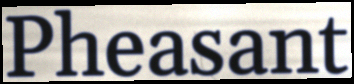
Pheasant